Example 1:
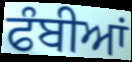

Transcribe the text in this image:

ਫੰਬੀਆਂ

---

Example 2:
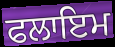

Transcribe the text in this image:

ਫਲਾਇਮ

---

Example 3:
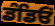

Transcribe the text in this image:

ਡੰਡਿਓਂ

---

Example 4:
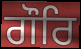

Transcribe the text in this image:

ਗੌਰਿ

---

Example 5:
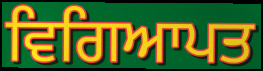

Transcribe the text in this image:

ਵਿਗਿਆਪਤ